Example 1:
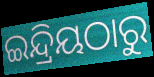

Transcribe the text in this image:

ଇନ୍ଦ୍ରିୟଠାରୁ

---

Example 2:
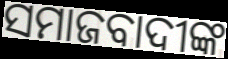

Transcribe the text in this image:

ସମାଜବାଦୀଙ୍କ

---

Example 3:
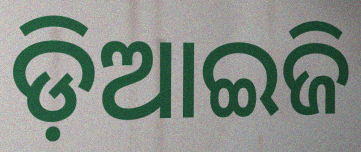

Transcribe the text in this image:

ଡ଼ିଆଇଜି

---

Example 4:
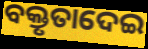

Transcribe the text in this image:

ବକ୍ତୃତାଦେଇ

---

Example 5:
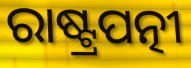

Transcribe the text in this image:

ରାଷ୍ଟ୍ରପତ୍ନୀ